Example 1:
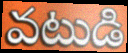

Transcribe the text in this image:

వటుడి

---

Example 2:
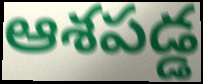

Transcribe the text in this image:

ఆశపడ్డ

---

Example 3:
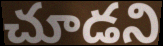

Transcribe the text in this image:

చూడని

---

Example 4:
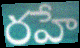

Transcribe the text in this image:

రహే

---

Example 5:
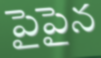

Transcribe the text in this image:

పైపైన